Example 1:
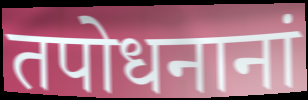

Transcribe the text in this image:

तपोधनानां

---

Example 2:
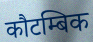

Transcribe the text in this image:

कौटम्बिक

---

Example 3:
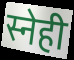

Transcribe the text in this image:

स्नेही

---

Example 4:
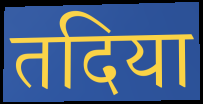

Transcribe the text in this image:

तदिया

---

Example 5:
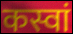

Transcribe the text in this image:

कस्वां